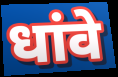
धांवे